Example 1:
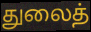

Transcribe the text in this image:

துலைத்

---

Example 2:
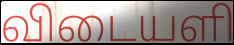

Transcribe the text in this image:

விடையளி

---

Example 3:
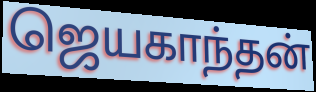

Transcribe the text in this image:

ஜெயகாந்தன்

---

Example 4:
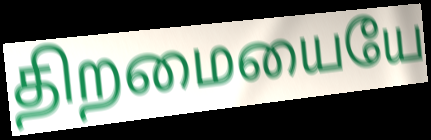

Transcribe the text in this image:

திறமையையே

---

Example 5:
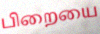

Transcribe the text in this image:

பிறையை